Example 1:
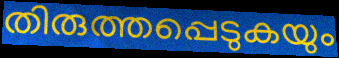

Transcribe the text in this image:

തിരുത്തപ്പെടുകയും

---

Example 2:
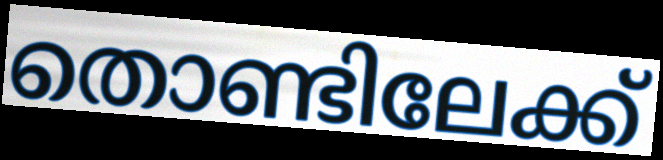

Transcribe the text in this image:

തൊണ്ടിലേക്ക്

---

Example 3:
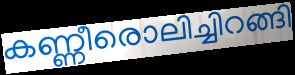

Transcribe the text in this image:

കണ്ണീരൊലിച്ചിറങ്ങി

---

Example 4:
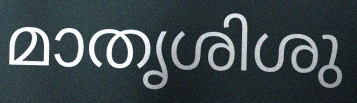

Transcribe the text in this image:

മാതൃശിശു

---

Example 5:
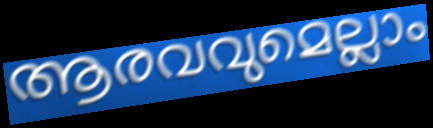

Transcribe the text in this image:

ആരവവുമെല്ലാം